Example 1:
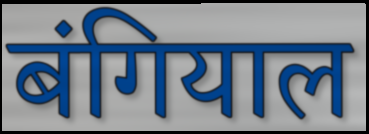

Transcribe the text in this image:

बंगियाल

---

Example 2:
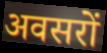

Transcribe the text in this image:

अवसरों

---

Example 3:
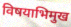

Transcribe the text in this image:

विषयाभिमुख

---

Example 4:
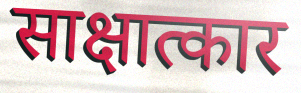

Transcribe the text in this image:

साक्षात्कार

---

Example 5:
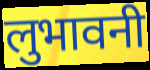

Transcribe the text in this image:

लुभावनी